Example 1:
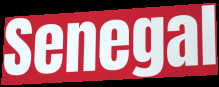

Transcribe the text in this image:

Senegal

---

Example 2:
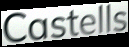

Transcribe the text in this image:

Castells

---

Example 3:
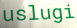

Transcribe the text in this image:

uslugi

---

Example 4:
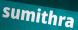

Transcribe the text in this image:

sumithra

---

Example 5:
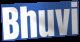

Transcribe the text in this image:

Bhuvi